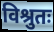
विश्रुतः